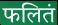
फलितं